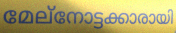
മേല്നോട്ടക്കാരായി